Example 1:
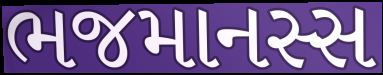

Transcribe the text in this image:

ભજમાનસ્સ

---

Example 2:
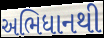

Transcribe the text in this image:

અભિધાનથી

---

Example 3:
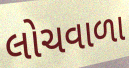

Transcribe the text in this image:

લોચવાળા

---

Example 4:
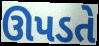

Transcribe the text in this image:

ઊપડતે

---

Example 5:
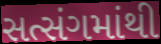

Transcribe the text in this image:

સત્સંગમાંથી